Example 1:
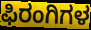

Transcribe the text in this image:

ಫಿರಂಗಿಗಳ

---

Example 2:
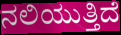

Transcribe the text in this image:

ನಲಿಯುತ್ತಿದೆ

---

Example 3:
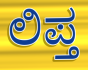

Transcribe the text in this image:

ಲಿಪ್ತ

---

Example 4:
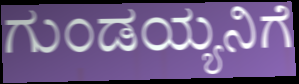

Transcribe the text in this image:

ಗುಂಡಯ್ಯನಿಗೆ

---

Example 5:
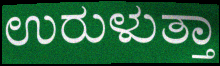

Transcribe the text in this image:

ಉರುಳುತ್ತಾ